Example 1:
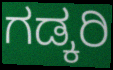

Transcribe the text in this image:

ಗಡ್ಕರಿ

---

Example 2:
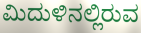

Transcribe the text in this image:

ಮಿದುಳಿನಲ್ಲಿರುವ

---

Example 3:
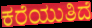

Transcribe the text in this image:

ಕರೆಯುತಿದೆ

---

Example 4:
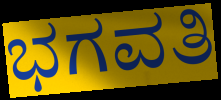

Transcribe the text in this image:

ಭಗವತಿ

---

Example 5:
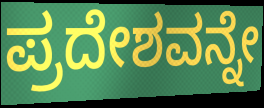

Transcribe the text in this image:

ಪ್ರದೇಶವನ್ನೇ